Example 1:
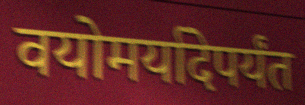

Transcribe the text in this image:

वयोमर्यादेपर्यंत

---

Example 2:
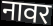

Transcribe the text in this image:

नावर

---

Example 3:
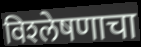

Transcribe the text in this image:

विश्‍लेषणाचा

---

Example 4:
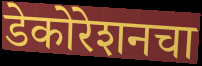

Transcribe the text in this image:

डेकोरेशनचा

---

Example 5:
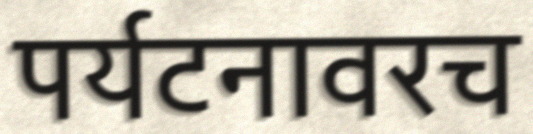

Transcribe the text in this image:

पर्यटनावरच